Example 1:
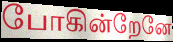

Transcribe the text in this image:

போகின்றேனே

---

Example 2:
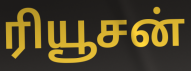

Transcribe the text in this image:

ரியூசன்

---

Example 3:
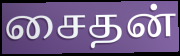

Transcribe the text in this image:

சைதன்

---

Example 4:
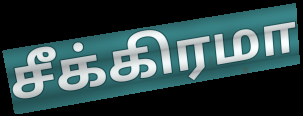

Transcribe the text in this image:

சீக்கிரமா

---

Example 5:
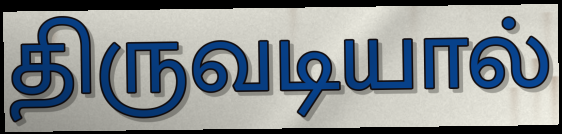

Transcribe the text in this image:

திருவடியால்